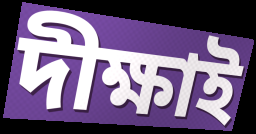
দীক্ষাই